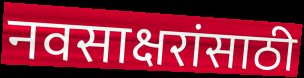
नवसाक्षरांसाठी